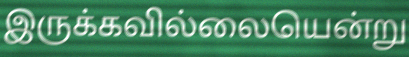
இருக்கவில்லையென்று